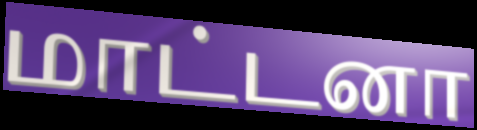
மாட்டனா